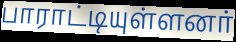
பாராட்டியுள்ளனர்